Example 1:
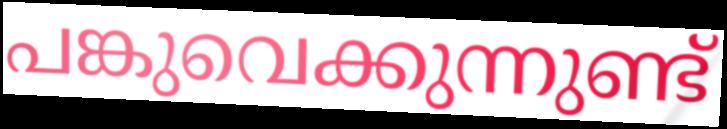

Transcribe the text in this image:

പങ്കുവെക്കുന്നുണ്ട്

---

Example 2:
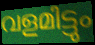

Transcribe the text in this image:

വളമിട്ടും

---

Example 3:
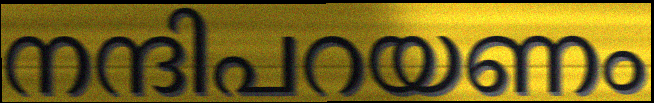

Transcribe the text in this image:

നന്ദിപറയണം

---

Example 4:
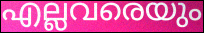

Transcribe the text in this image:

എല്ലവരെയും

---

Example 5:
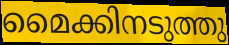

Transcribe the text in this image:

മൈക്കിനടുത്തു